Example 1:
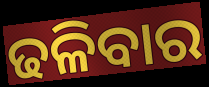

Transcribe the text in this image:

ଢଳିବାର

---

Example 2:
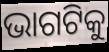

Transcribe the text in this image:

ଭାଗଟିକୁ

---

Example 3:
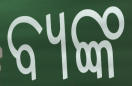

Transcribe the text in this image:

ବ୍ୟଙ୍କ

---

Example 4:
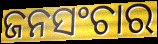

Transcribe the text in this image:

ଜନସଂଚାର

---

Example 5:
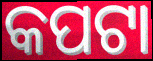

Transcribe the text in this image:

କପଟା